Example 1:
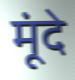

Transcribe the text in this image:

मूंदे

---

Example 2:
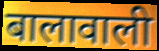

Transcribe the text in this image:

बालावाली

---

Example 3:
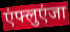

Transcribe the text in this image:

एंफ्लुएंजा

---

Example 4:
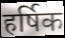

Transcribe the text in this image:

हर्षिक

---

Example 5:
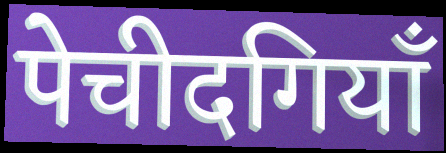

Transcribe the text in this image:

पेचीदगियाँ